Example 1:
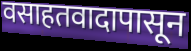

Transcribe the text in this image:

वसाहतवादापासून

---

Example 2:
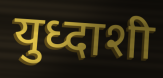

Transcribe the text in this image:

युध्दाशी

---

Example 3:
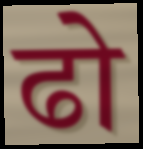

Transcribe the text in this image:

ढो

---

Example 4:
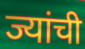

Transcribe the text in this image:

ज्यांची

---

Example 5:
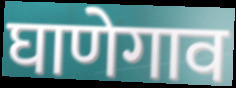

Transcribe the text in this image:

घाणेगाव